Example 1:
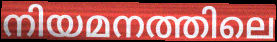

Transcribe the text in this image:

നിയമനത്തിലെ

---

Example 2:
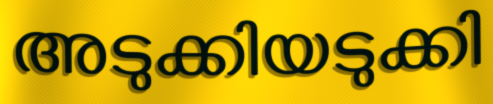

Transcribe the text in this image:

അടുക്കിയടുക്കി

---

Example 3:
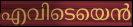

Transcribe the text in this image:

എവിടെയെൻ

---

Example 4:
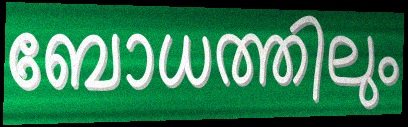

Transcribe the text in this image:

ബോധത്തിലും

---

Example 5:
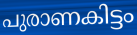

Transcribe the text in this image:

പുരാണകിട്ടം